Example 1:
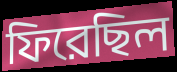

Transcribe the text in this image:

ফিরেছিল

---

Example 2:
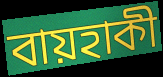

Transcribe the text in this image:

বায়হাকী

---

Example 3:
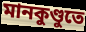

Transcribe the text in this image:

মানকুণ্ডুতে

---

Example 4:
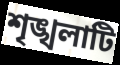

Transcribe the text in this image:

শৃঙ্খলাটি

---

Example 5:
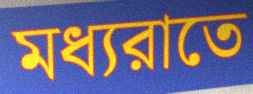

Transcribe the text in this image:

মধ্যরাতে